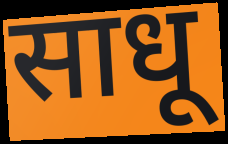
साधू